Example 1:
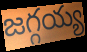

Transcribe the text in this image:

జగ్గయ్య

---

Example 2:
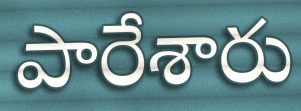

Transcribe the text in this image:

పారేశారు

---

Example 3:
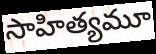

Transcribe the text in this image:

సాహిత్యమూ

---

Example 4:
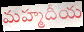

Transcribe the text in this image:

మహ్మదీయ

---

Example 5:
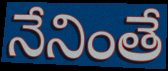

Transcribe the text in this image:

నేనింతే